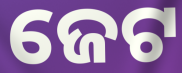
ଜେଟ